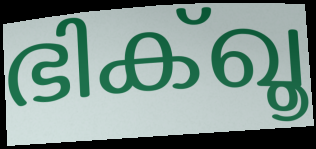
ഭിക്ഖൂ